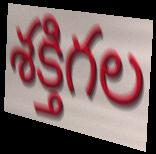
శక్తిగల